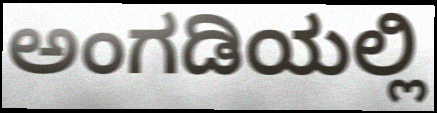
ಅಂಗಡಿಯಲ್ಲಿ